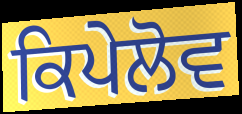
ਕਿਪੇਲੋਵ